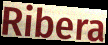
Ribera